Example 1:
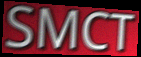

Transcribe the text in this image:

SMCT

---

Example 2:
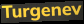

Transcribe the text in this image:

Turgenev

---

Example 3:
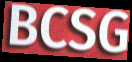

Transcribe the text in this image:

BCSG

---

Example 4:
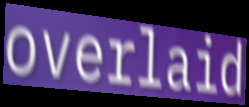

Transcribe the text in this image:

overlaid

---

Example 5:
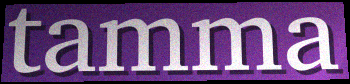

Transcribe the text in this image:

tamma